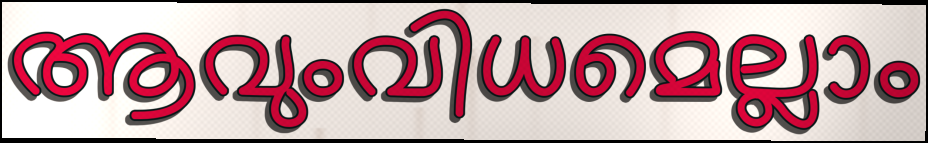
ആവുംവിധമെല്ലാം